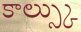
కాల్స్కు